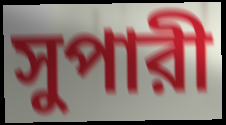
সুপারী